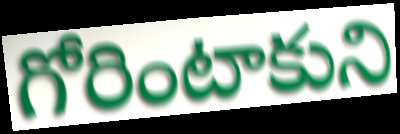
గోరింటాకుని